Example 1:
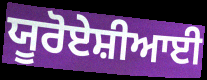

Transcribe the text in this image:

ਯੂਰੋਏਸ਼ੀਆਈ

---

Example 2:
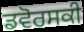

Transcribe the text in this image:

ਡਵੋਰਸਕੀ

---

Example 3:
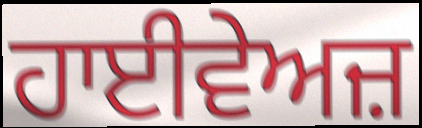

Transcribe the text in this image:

ਹਾਈਵੇਅਜ਼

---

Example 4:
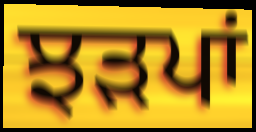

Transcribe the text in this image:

ਝੜਪਾਂ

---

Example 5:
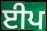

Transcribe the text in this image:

ਈਪ